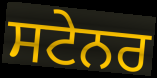
ਸਟੇਨਰ